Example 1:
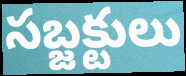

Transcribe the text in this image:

సబ్జక్టులు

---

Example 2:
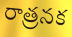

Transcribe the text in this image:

రాత్రనక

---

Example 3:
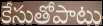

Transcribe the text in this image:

కేసుతోపాటు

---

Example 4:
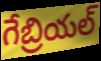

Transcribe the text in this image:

గేబ్రియల్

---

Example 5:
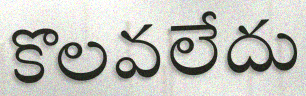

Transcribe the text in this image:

కొలవలేదు